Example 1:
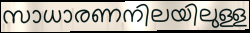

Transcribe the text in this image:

സാധാരണനിലയിലുള്ള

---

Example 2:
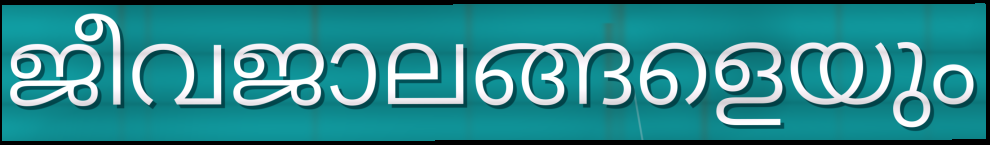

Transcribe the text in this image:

ജീവജാലങ്ങളെയും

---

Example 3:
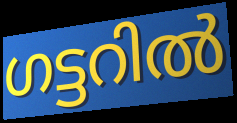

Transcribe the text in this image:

ഗട്ടറിൽ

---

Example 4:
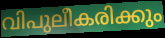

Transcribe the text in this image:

വിപുലീകരിക്കും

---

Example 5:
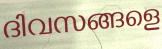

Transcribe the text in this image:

ദിവസങ്ങളെ